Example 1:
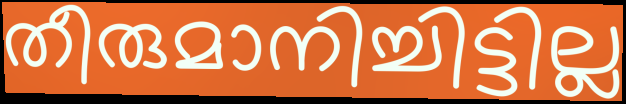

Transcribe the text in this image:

തീരുമാനിച്ചിട്ടില്ല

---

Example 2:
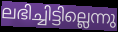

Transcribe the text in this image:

ലഭിച്ചിട്ടില്ലെന്നു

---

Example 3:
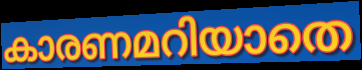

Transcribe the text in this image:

കാരണമറിയാതെ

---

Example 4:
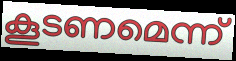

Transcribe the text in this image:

കൂടണമെന്ന്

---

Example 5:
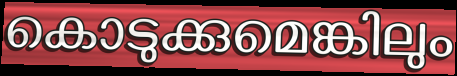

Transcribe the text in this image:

കൊടുക്കുമെങ്കിലും